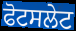
ਫੋਟਸਲੇਟ